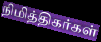
நிமித்திகர்கள்